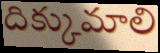
దిక్కుమాలి